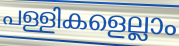
പള്ളികളെല്ലാം